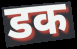
डक